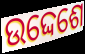
ଉଦ୍ଦେଶେ